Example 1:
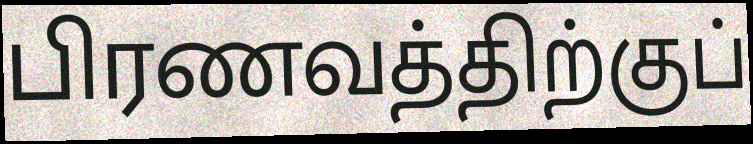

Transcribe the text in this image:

பிரணவத்திற்குப்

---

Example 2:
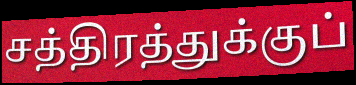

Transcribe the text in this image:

சத்திரத்துக்குப்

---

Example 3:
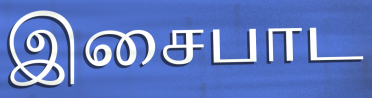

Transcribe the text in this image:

இசைபாட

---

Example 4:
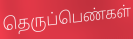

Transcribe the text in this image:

தெருப்பெண்கள்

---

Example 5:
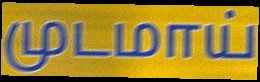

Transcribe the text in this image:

முடமாய்